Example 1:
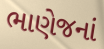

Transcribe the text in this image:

ભાણેજનાં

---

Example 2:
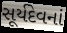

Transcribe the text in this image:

સૂર્યદેવનાં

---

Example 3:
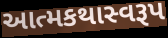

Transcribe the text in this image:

આત્મકથાસ્વરૂપ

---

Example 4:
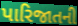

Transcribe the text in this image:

પારિજાતની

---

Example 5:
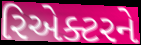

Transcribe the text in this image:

રિએક્ટરને